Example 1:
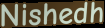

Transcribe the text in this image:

Nishedh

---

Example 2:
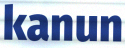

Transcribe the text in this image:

kanun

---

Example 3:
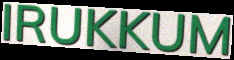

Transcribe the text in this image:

IRUKKUM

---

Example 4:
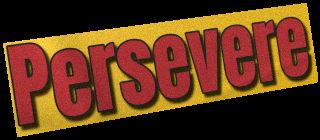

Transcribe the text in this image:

Persevere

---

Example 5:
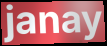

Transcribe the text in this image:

janay